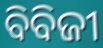
ବିବିଜୀ